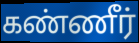
கண்ணீர்